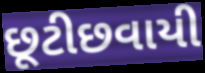
છૂટીછવાયી